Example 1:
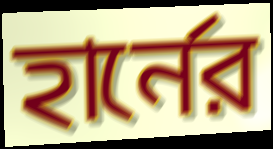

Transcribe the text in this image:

হার্নের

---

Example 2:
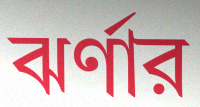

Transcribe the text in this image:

ঝর্ণার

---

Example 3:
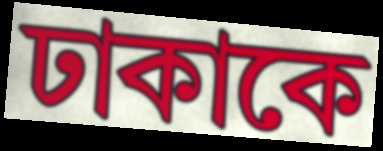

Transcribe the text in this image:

ঢাকাকে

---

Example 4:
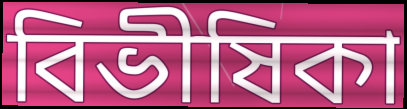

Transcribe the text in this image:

বিভীষিকা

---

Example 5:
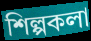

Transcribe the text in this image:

শিল্পকলা